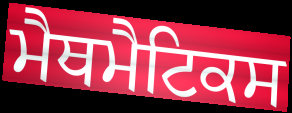
ਮੈਥਮੈਟਿਕਸ